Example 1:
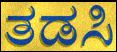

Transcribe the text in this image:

ತಡಸಿ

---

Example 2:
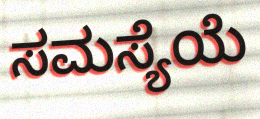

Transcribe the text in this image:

ಸಮಸ್ಯೆಯೆ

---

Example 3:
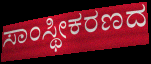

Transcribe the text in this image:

ಸಾಂಸ್ಥೀಕರಣದ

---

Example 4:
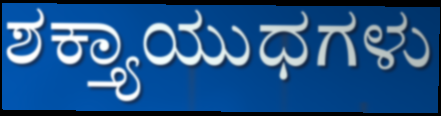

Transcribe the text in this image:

ಶಕ್ತ್ಯಾಯುಧಗಳು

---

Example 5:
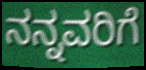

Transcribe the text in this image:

ನನ್ನವರಿಗೆ